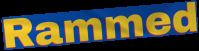
Rammed